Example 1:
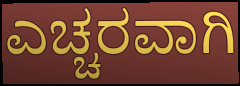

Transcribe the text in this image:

ಎಚ್ಚರವಾಗಿ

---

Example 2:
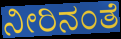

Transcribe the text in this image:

ನೀರಿನಂತೆ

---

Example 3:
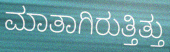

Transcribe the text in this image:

ಮಾತಾಗಿರುತ್ತಿತ್ತು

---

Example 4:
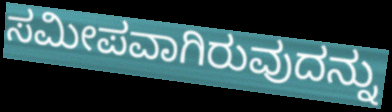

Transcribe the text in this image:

ಸಮೀಪವಾಗಿರುವುದನ್ನು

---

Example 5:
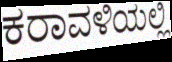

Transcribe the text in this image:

ಕರಾವಳಿಯಲ್ಲಿ